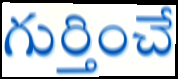
గుర్తించే